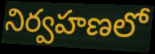
నిర్వహణలో